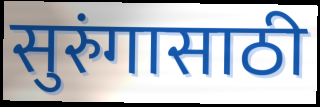
सुरुंगासाठी